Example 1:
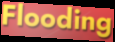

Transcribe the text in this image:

Flooding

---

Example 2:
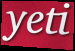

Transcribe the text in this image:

yeti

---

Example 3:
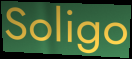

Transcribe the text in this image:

Soligo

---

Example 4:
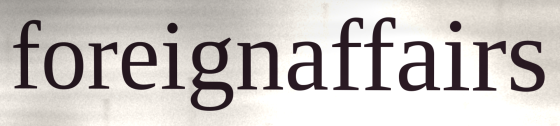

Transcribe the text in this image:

foreignaffairs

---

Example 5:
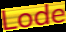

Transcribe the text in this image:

Lode